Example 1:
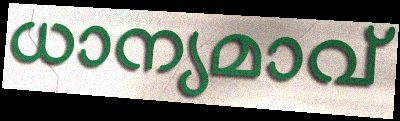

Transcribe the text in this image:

ധാന്യമാവ്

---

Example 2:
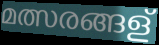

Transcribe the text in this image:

മത്സരങ്ങള്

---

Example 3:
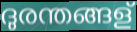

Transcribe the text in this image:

ദുരന്തങ്ങള്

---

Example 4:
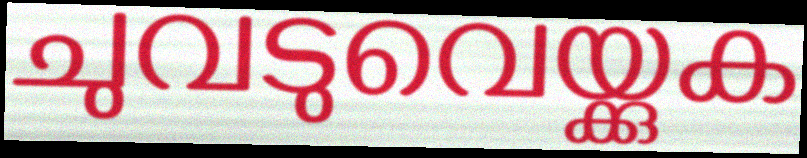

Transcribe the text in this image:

ചുവടുവെയ്ക്കുക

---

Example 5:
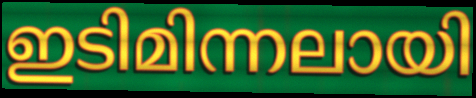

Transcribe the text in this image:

ഇടിമിന്നലായി